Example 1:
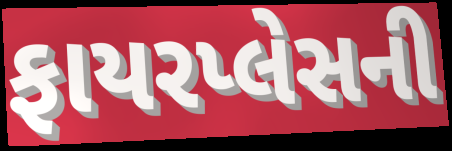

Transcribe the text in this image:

ફાયરપ્લેસની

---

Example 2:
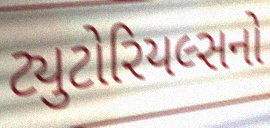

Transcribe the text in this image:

ટ્યુટોરિયલ્સનો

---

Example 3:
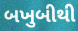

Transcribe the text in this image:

બખુબીથી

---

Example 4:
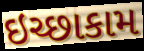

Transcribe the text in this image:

ઇચ્છાકામ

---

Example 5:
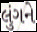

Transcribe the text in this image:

લુંગને